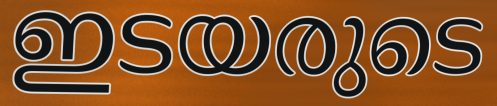
ഇടയരുടെ